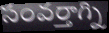
సంవర్తాగ్ని